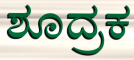
ಶೂದ್ರಕ